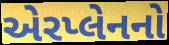
એરપ્લેનનો